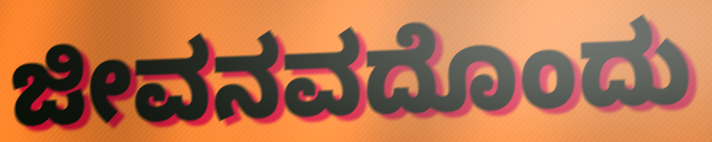
ಜೀವನವದೊಂದು